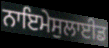
ਨਾਇਮੇਸੁਲਾਈਡ